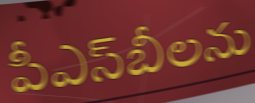
పీఎస్‌బీలను